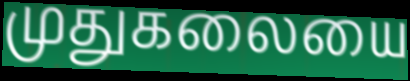
முதுகலையை